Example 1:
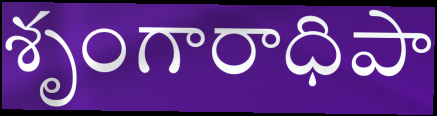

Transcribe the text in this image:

శృంగారాధిపా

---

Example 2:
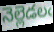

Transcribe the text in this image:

నెల్లెడలఁ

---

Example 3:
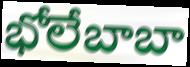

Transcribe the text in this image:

భోలేబాబా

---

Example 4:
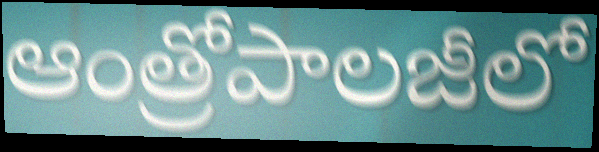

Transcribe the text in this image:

ఆంత్రోపాలజీలో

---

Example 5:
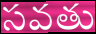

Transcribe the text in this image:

సవతు